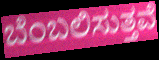
ಬೆಂಬಲಿಸುತ್ತವೆ